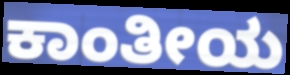
ಕಾಂತೀಯ